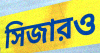
সিজারও